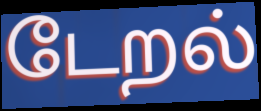
டேறல்